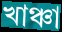
খাঞ্চা